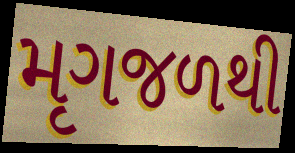
મૃગજળથી